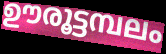
ഊരൂട്ടമ്പലം